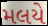
મલયે